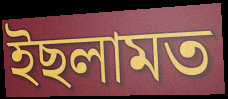
ইছলামত